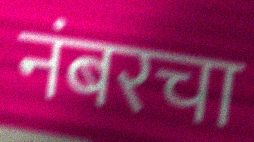
नंबरचा